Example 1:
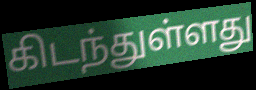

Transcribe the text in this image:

கிடந்துள்ளது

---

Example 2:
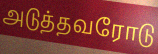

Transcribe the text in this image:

அடுத்தவரோடு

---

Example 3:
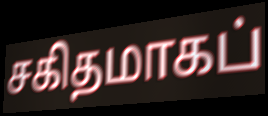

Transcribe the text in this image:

சகிதமாகப்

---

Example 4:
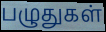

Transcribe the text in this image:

பழுதுகள்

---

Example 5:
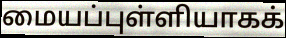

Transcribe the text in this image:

மையப்புள்ளியாகக்